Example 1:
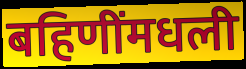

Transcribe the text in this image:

बहिणींमधली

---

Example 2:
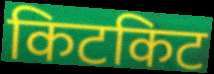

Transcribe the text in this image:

किटकिट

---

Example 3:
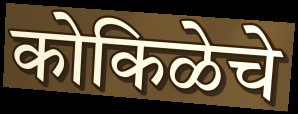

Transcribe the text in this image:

कोकिळेचे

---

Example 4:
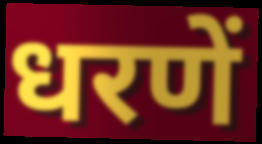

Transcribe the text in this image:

धरणें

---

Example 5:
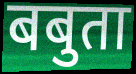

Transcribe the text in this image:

बबुता